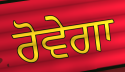
ਰੋਵੇਗਾ